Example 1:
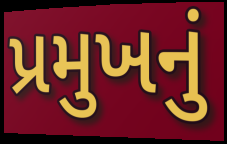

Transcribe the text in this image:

પ્રમુખનું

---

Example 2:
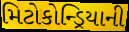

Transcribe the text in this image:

મિટોકોન્ડ્રિયાની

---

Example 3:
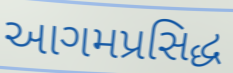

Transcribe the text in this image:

આગમપ્રસિદ્ધ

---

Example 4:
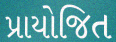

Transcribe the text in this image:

પ્રાયોજિત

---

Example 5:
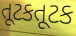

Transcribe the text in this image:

તૂટકતૂટક